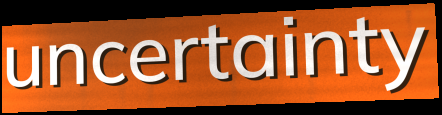
uncertainty